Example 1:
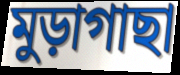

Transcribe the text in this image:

মুড়াগাছা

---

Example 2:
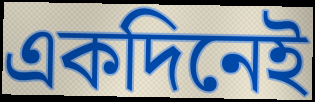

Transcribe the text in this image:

একদিনেই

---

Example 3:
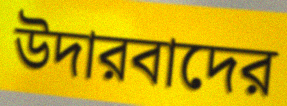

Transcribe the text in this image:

উদারবাদের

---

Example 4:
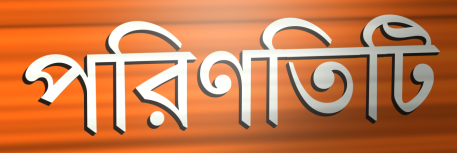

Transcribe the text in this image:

পরিণতিটি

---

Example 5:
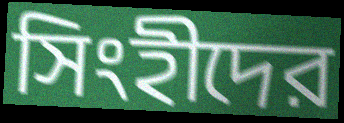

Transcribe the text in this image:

সিংহীদের